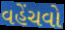
વહેંચવો